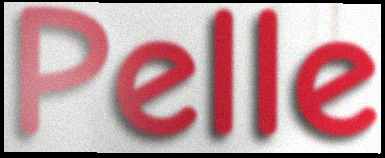
Pelle